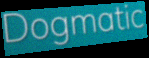
Dogmatic